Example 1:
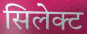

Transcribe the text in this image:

सिलेक्ट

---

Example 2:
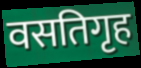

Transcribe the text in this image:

वसतिगृह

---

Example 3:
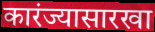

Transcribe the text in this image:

कारंज्यासारखा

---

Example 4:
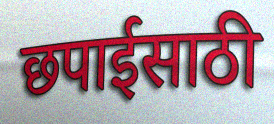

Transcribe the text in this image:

छपाईसाठी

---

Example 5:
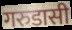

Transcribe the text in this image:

गरुडासी